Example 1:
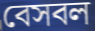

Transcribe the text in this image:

বেসবল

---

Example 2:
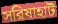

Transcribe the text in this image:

সরিষাহাট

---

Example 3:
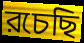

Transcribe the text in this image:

রচেছি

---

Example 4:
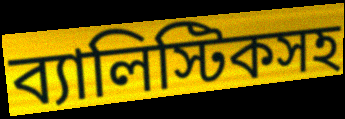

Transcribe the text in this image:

ব্যালিস্টিকসহ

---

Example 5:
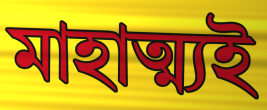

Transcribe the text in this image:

মাহাত্ম্যই